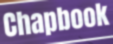
Chapbook